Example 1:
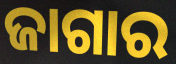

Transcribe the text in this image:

ଜାଗାର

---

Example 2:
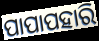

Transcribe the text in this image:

ପାପାପହାରି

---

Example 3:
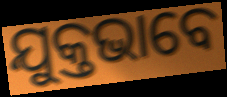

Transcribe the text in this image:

ଯୁକ୍ତଭାବେ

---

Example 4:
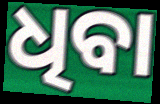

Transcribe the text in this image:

ଧିବା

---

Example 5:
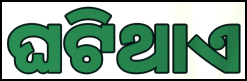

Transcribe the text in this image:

ଘଟିଥାଏ